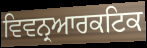
ਵਿਵਨ੍ਰਆਰਕਟਿਕ